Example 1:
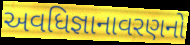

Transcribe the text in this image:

અવધિજ્ઞાનાવરણનો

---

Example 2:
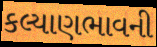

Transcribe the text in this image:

કલ્યાણભાવની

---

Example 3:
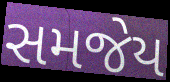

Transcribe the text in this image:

સમજેય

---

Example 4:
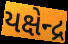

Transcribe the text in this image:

યક્ષેન્દ્ર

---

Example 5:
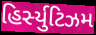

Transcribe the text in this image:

હિર્સ્યુટિઝમ